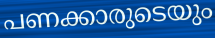
പണക്കാരുടെയും